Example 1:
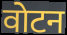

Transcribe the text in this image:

वोटन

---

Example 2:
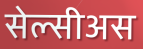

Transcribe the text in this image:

सेल्सीअस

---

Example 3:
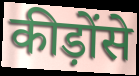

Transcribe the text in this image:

कीड़ोंसे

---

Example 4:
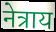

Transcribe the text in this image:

नेत्राय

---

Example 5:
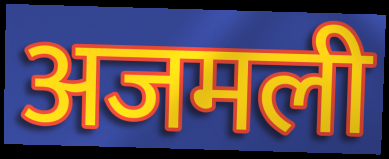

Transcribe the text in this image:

अजमली